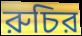
রুচির